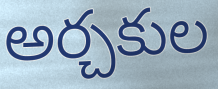
అర్చకుల